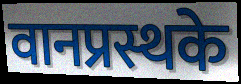
वानप्रस्थके